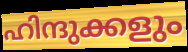
ഹിന്ദുക്കളും